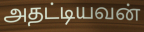
அதட்டியவன்